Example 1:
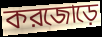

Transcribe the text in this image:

করজোড়ে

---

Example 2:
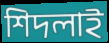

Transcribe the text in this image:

শিদলাই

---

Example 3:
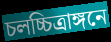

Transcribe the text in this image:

চলচ্চিত্রাঙ্গনে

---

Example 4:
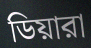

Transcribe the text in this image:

ডিয়ারা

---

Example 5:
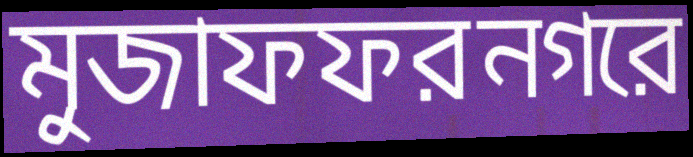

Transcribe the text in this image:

মুজাফফরনগরে